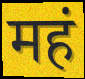
महं